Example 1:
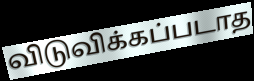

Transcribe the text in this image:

விடுவிக்கப்படாத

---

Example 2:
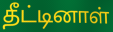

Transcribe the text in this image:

தீட்டினாள்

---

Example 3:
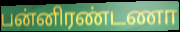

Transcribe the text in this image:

பன்னிரண்டணா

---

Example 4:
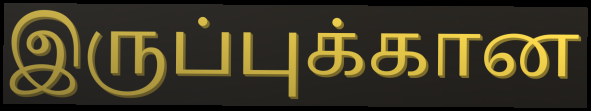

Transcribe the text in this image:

இருப்புக்கான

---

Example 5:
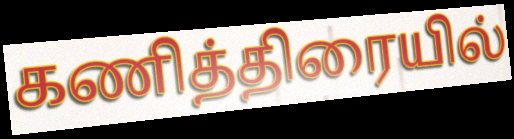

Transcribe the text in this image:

கணித்திரையில்